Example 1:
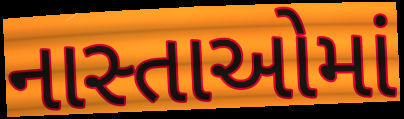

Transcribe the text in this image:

નાસ્તાઓમાં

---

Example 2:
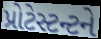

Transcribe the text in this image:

પ્રોટેસ્ટન્ટને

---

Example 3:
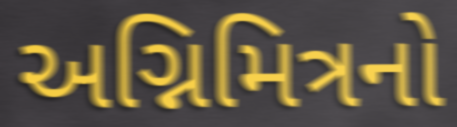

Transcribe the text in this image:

અગ્નિમિત્રનો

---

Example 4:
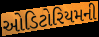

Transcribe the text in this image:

ઓડિટોરિયમની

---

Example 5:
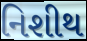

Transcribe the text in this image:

નિશીથ